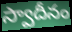
స్వాదీనం